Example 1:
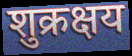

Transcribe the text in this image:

शुक्रक्षय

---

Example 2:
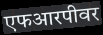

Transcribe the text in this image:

एफआरपीवर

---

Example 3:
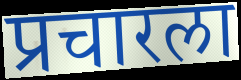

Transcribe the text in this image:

प्रचारला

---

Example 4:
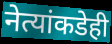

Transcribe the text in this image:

नेत्यांकडेही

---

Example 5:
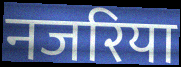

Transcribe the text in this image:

नजरिया